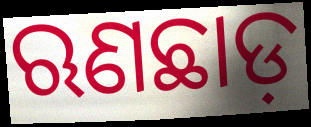
ଋଣଛାଡ଼